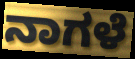
ನಾಗಳೆ